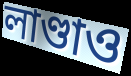
লাণ্ডাও